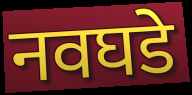
नवघडे